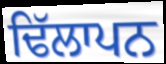
ਢਿੱਲਾਪਨ